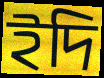
ইদি